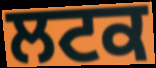
ਲਟਕ